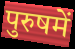
पुरुषमें